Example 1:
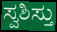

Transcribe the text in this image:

ಸ್ವಶಿಸ್ತು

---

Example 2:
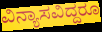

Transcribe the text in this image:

ವಿನ್ಯಾಸವಿದ್ದರೂ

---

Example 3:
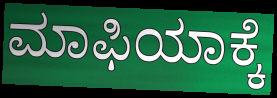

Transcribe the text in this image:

ಮಾಫಿಯಾಕ್ಕೆ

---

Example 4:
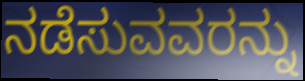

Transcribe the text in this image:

ನಡೆಸುವವರನ್ನು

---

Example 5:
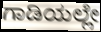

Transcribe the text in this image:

ಗಾಡಿಯಲ್ಲೇ